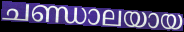
ചണ്ഡാലയായ